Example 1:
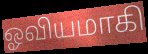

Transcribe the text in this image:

ஓவியமாகி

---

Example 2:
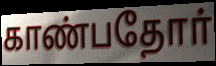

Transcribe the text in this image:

காண்பதோர்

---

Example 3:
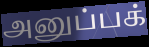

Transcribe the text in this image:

அனுப்பக்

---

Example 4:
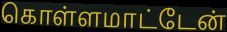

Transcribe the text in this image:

கொள்ளமாட்டேன்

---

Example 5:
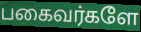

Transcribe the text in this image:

பகைவர்களே